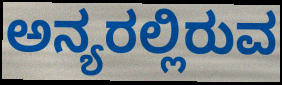
ಅನ್ಯರಲ್ಲಿರುವ